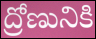
ద్రోణునికి